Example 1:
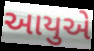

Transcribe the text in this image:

આયુએ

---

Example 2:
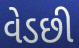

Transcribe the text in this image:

વેડછી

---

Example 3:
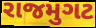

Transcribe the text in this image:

રાજમુગટ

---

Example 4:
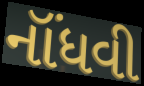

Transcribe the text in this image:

નૉંધવી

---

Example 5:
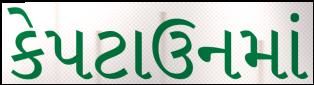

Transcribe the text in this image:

કેપટાઉનમાં